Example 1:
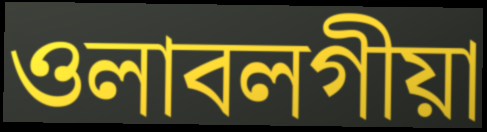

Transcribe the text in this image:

ওলাবলগীয়া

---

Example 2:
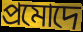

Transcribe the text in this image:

প্ৰমোদে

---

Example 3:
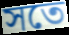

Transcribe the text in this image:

সতে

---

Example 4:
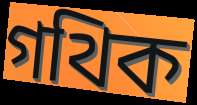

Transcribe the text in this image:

গথিক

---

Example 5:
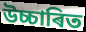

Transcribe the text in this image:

উচ্চাৰিত